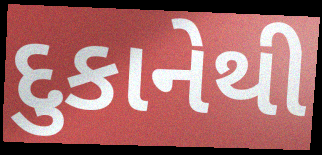
દુકાનેથી